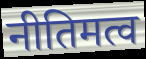
नीतिमत्व